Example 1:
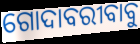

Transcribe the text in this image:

ଗୋଦାବରୀବାବୁ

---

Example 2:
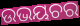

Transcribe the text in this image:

ଉଭୟଚର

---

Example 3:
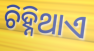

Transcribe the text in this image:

ଚିହ୍ନିଥାଏ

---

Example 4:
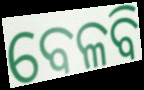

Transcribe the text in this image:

ବେଳବି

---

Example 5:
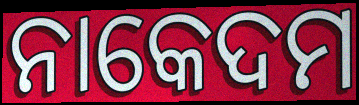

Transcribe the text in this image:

ନାକେଦମ